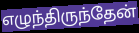
எழுந்திருந்தேன்